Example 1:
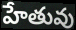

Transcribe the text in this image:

హేతువు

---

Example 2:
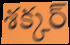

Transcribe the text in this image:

శక్కర్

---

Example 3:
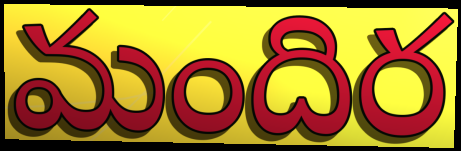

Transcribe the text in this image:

మందిర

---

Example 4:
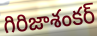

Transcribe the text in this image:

గిరిజాశంకర్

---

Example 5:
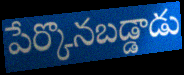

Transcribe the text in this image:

పేర్కొనబడ్డాడు